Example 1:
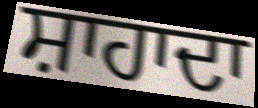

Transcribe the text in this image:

ਸ਼ਾਹਾਦਾ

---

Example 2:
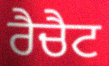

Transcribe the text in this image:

ਰੈਚੈਟ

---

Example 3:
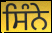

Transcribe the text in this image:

ਸਿੰਨੇ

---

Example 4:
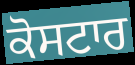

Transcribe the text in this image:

ਕੋਸਟਾਰ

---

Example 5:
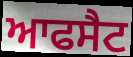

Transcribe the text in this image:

ਆਫਸੈਟ